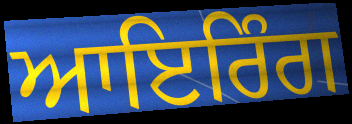
ਆਇਰਿੰਗ